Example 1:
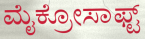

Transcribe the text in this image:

ಮೈಕ್ರೋಸಾಫ್ಟ್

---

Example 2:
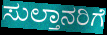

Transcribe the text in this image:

ಸುಲ್ತಾನರಿಗೆ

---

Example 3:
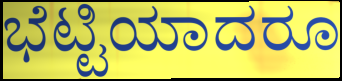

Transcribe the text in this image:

ಭೆಟ್ಟಿಯಾದರೂ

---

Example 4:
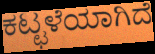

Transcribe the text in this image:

ಕಟ್ಟಳೆಯಾಗಿದೆ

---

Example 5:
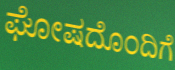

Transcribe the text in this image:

ಘೋಷದೊಂದಿಗೆ